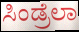
ಸಿಂಡ್ರೆಲಾ